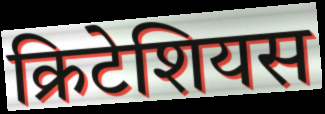
क्रिटेशियस